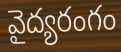
వైద్యరంగం